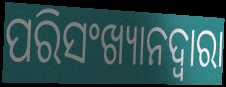
ପରିସଂଖ୍ୟାନଦ୍ଵାରା